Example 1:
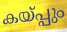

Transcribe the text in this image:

കയ്പ്പും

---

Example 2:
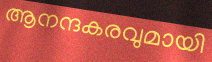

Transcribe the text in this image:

ആനന്ദകരവുമായി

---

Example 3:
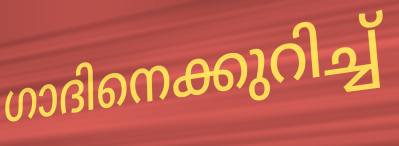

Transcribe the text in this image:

ഗാദിനെക്കുറിച്ച്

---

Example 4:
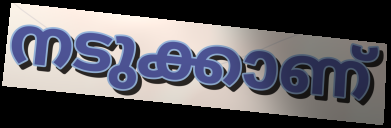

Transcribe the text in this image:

നടുക്കാണ്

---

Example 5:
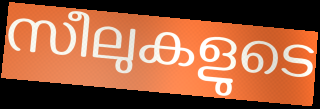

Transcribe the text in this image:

സീലുകളുടെ